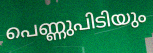
പെണ്ണുപിടിയും